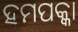
ହମପକ୍କା